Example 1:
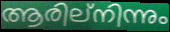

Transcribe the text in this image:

ആരില്നിന്നും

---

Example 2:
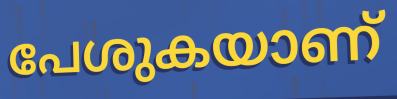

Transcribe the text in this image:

പേശുകയാണ്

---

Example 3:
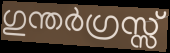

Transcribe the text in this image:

ഗുന്തർഗ്രസ്സ്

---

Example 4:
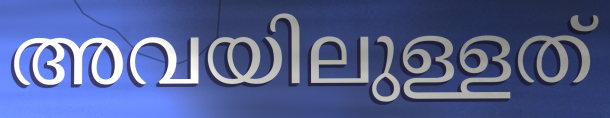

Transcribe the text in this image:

അവയിലുള്ളത്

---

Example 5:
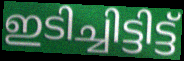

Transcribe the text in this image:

ഇടിച്ചിട്ടിട്ട്